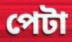
পেটা